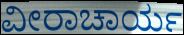
ವೀರಾಚಾರ್ಯ